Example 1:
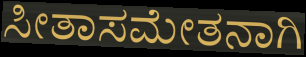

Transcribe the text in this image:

ಸೀತಾಸಮೇತನಾಗಿ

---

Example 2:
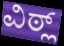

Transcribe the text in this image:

ವಿಠ್ಲ್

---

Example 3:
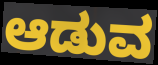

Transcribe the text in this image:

ಆಡುವ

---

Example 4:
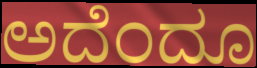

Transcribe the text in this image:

ಅದೆಂದೂ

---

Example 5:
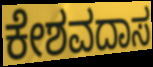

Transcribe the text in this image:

ಕೇಶವದಾಸ